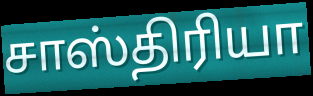
சாஸ்திரியா